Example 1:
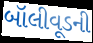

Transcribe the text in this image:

બૉલીવૂડની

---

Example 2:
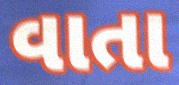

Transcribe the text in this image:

વાતા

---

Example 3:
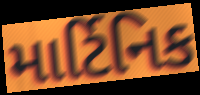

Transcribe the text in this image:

માર્ટિનિક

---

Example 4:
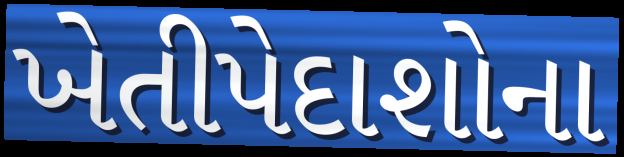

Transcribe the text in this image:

ખેતીપેદાશોના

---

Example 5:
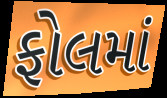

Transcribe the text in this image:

ફોલમાં